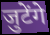
जुटेंगे